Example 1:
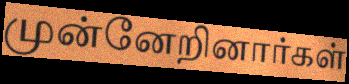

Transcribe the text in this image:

முன்னேறினார்கள்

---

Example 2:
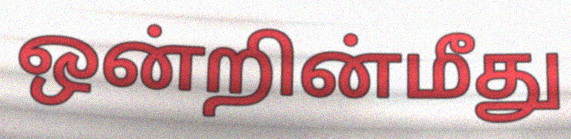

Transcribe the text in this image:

ஒன்றின்மீது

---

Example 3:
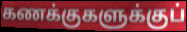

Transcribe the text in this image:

கணக்குகளுக்குப்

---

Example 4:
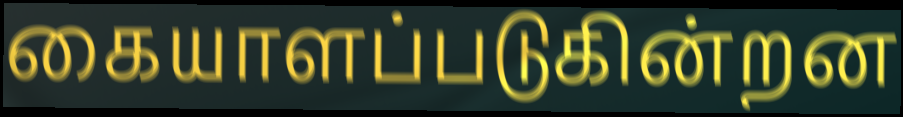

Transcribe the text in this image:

கையாளப்படுகின்றன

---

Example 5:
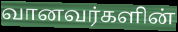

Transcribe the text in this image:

வானவர்களின்